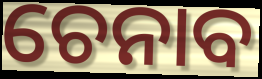
ଚେନାବ